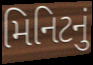
મિનિટનું